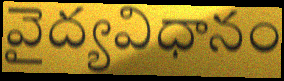
వైద్యవిధానం